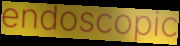
endoscopic